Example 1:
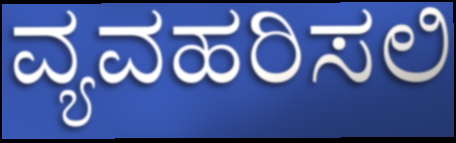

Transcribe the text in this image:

ವ್ಯವಹರಿಸಲಿ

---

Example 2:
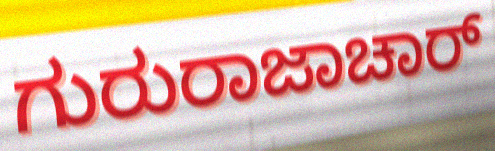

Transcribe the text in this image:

ಗುರುರಾಜಾಚಾರ್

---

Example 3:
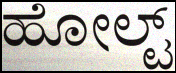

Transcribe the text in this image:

ಹೋಲ್ಟ್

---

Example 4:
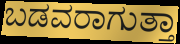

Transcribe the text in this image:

ಬಡವರಾಗುತ್ತಾ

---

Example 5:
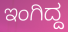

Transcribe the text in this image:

ಇಂಗಿದ್ದ